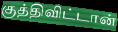
குத்திவிட்டான்